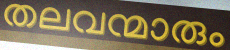
തലവന്മാരും